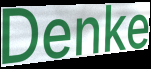
Denke